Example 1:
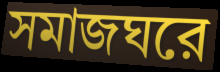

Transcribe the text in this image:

সমাজঘরে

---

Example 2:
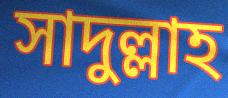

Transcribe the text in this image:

সাদুল্লাহ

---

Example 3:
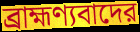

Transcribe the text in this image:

ব্রাহ্মণ্যবাদের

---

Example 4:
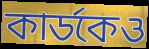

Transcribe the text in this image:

কার্ডকেও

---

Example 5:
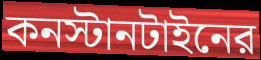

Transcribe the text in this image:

কনস্টানটাইনের